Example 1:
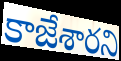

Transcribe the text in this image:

కాజేశారని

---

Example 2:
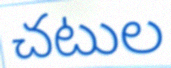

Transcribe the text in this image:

చటుల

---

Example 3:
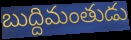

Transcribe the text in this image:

బుద్దిమంతుడు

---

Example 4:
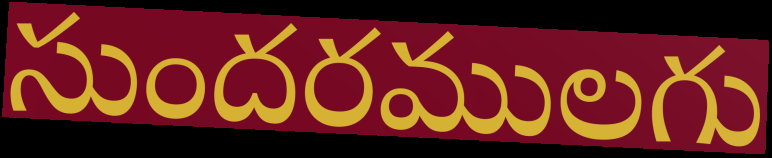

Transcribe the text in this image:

సుందరములగు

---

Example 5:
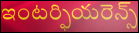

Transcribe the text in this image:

ఇంటర్ఫియరెన్స్